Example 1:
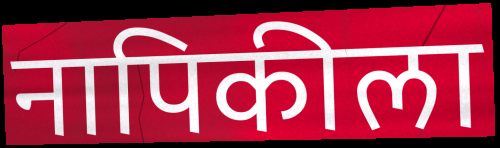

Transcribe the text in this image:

नापिकीला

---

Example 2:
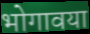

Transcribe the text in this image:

भोगावया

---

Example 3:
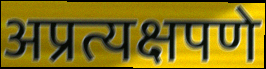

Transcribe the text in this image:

अप्रत्यक्षपणे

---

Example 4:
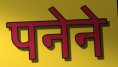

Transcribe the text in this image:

पनेने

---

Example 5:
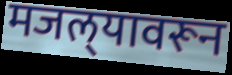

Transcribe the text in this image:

मजल्यावरून